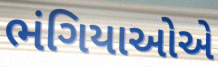
ભંગિયાઓએ